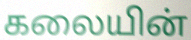
கலையின்